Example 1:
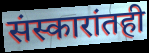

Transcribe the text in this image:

संस्कारांतही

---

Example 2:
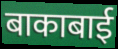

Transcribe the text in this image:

बाकाबाई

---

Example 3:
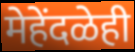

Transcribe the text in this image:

मेहेंदळेही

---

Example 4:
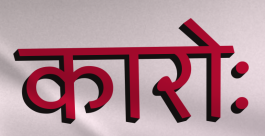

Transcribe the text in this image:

कारोः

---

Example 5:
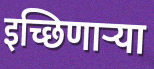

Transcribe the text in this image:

इच्छिणार्‍या